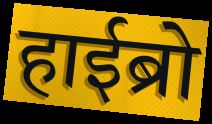
हाईब्रो